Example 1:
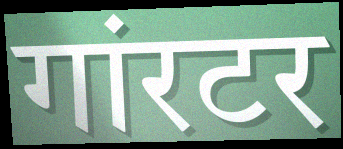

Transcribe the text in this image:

गांरटर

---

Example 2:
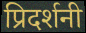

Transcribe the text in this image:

प्रिदर्शनी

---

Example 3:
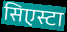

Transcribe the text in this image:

सिएस्टा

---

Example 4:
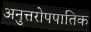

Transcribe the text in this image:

अनुत्तरोपपातिक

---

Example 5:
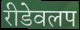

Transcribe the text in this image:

रीडेवलप